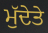
ਮੁੱਦੇਤੇ